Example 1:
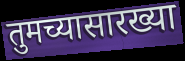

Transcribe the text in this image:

तुमच्यासारख्या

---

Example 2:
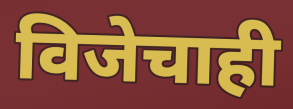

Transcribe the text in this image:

विजेचाही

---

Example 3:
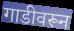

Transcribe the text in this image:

गाडीवरून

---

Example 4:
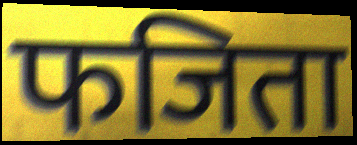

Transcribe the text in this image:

फजिता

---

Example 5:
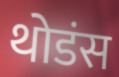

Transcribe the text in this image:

थोडंस